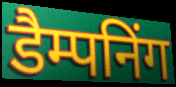
डैम्पनिंग